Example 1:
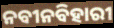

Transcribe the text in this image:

ନବୀନବିହାରୀ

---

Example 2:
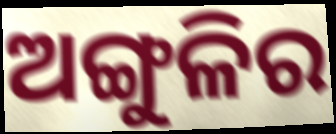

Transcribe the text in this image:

ଅଙ୍ଗୁଳିର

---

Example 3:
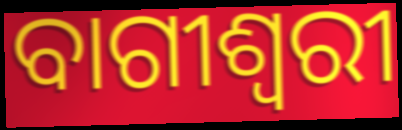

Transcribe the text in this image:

ବାଗୀଶ୍ୱରୀ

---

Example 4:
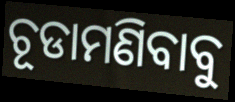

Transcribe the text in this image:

ଚୂଡାମଣିବାବୁ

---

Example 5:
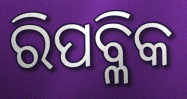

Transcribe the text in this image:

ରିପବ୍ଳିକ